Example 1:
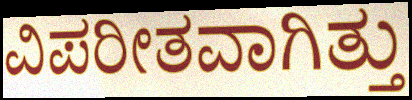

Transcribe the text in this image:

ವಿಪರೀತವಾಗಿತ್ತು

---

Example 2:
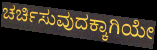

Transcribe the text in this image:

ಚರ್ಚಿಸುವುದಕ್ಕಾಗಿಯೇ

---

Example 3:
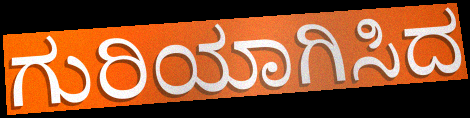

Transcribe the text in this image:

ಗುರಿಯಾಗಿಸಿದ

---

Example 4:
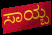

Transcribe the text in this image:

ಸಾಯ್ಬ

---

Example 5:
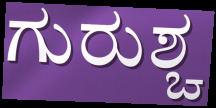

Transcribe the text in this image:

ಗುರುಶ್ಚ